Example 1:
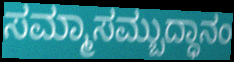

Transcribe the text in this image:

ಸಮ್ಮಾಸಮ್ಬುದ್ಧಾನಂ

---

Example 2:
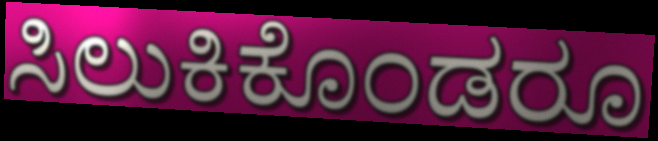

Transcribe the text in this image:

ಸಿಲುಕಿಕೊಂಡರೂ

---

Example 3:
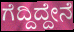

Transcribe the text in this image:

ಗೆದ್ದಿದ್ದೇನೆ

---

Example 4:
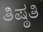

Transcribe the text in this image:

ತಿಷ್ಠತಿ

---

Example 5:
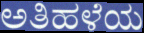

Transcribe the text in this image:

ಅತಿಹಳೆಯ